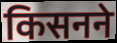
किसनने